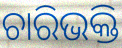
ଚାରିଭକ୍ତି